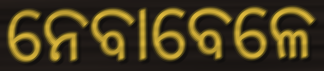
ନେବାବେଳେ